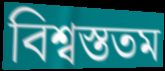
বিশ্বস্ততম